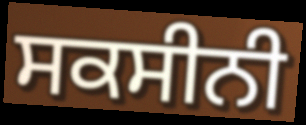
ਸਕਸੀਨੀ